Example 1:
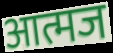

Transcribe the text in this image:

आत्मज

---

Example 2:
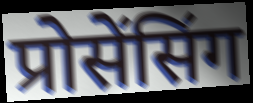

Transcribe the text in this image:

प्रोसेंसिंग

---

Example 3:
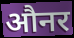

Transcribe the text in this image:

औनर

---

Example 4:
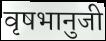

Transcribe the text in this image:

वृषभानुजी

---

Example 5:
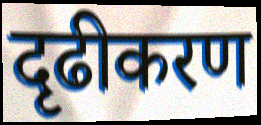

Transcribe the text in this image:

दृढीकरण